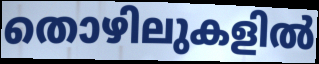
തൊഴിലുകളിൽ